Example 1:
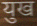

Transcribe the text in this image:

युख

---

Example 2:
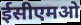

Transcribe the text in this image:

ईसीएमओ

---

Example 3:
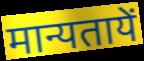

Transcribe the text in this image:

मान्यतायें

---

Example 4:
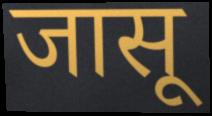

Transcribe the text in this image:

जासू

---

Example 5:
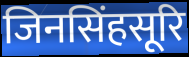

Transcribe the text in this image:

जिनसिंहसूरि